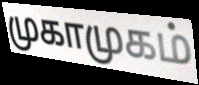
முகாமுகம்